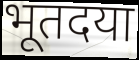
भूतदया